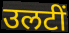
उलटीं